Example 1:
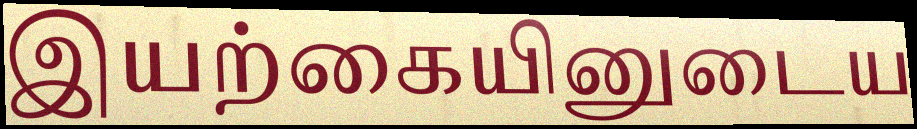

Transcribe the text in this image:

இயற்கையினுடைய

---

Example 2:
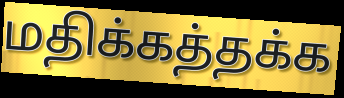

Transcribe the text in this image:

மதிக்கத்தக்க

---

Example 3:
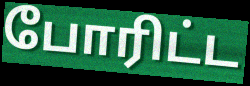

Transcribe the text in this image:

போரிட்ட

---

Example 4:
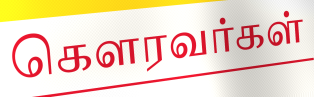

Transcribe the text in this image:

கெளரவர்கள்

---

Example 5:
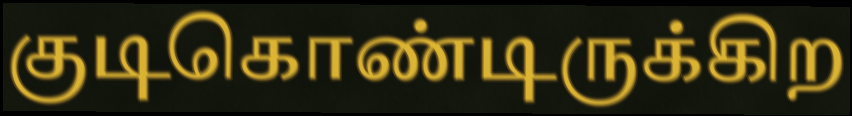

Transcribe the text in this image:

குடிகொண்டிருக்கிற